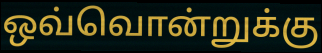
ஒவ்வொன்றுக்கு